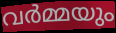
വർമ്മയും